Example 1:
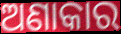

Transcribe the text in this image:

ଅଣାକାର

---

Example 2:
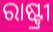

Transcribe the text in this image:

ରାଷ୍ଟ୍ରୀ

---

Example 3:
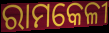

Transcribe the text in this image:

ରାମକେଳୀ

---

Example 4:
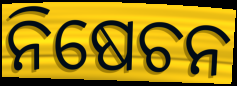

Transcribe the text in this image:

ନିଷେଚନ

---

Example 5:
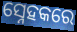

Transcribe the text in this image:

ସ୍ନେହକରେ